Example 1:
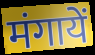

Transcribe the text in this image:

मंगायें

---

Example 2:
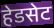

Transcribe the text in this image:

हेडसेट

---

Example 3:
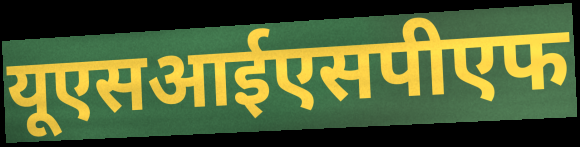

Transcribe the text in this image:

यूएसआईएसपीएफ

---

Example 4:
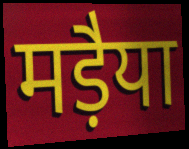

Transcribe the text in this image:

मड़ैया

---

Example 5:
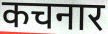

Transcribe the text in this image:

कचनार